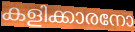
കളിക്കാരനോ